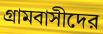
গ্রামবাসীদের